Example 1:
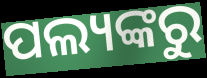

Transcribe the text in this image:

ପଲ୍ୟଙ୍କରୁ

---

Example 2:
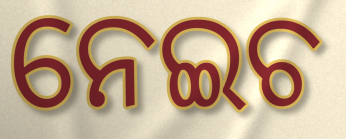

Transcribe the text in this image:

ନେଇଚ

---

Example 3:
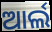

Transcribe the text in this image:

ଆର୍ଲ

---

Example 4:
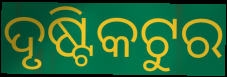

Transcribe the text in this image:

ଦୃଷ୍ଟିକଟୁର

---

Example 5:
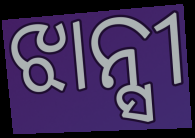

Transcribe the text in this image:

ଝାନ୍ସୀ